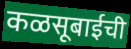
कळसूबाईची